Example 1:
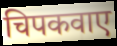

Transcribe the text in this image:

चिपकवाए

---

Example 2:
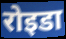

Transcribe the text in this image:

रोइडा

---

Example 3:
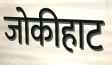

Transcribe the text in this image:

जोकीहाट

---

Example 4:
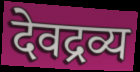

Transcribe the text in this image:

देवद्रव्य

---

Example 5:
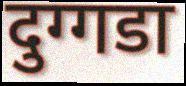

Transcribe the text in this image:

दुग्गडा